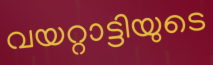
വയറ്റാട്ടിയുടെ